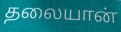
தலையான்